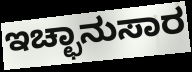
ಇಚ್ಛಾನುಸಾರ